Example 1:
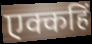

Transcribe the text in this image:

एक्कहिं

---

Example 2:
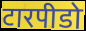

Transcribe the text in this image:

टारपीडो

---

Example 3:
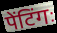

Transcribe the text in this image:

पेंटिंगः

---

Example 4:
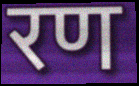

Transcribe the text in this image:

रण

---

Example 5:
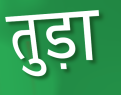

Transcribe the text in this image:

तुड़ा